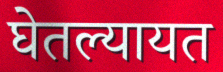
घेतल्यायत